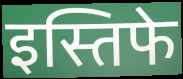
इस्तिफे